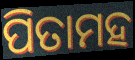
ପିତାମହ